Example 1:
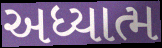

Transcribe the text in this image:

અધ્યાત્મ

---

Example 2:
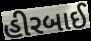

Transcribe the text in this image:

હીરબાઈ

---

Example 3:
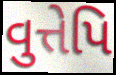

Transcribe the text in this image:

વુત્તેપિ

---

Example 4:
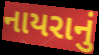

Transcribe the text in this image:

નાયરાનું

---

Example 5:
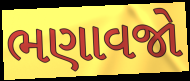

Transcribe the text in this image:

ભણાવજો